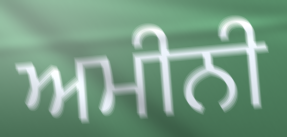
ਅਮੀਨੀ